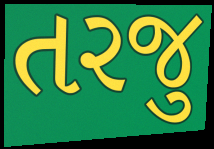
તરજુ